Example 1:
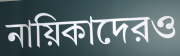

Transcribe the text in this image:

নায়িকাদেরও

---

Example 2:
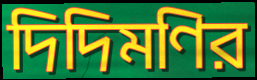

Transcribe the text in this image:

দিদিমণির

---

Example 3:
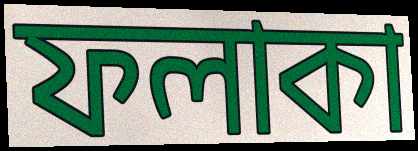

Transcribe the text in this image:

ফলাকা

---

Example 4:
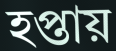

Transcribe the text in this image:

হপ্তায়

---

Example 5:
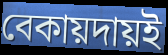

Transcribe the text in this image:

বেকায়দায়ই